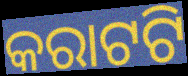
କରାଟଟି